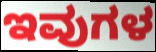
ಇವುಗಳ